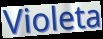
Violeta